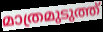
മാത്രമുടുത്ത്